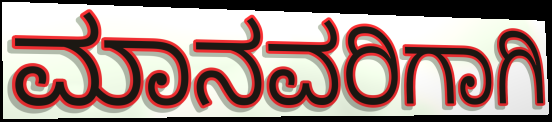
ಮಾನವರಿಗಾಗಿ